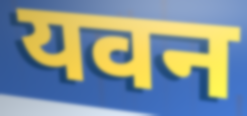
यवन